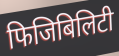
फिजिबिलिटी